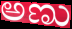
అణు